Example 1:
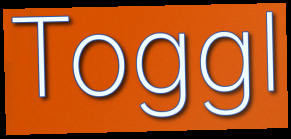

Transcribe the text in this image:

Toggl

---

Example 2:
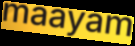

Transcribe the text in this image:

maayam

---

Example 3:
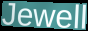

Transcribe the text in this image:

Jewell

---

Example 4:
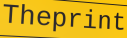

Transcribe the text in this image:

Theprint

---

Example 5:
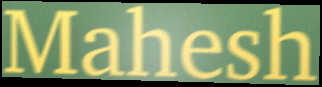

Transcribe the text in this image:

Mahesh